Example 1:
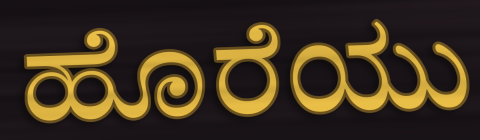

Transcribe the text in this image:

ಹೊರೆಯು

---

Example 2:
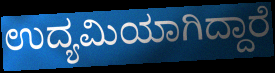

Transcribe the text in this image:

ಉದ್ಯಮಿಯಾಗಿದ್ದಾರೆ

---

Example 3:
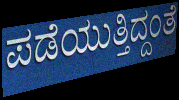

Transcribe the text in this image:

ಪಡೆಯುತ್ತಿದ್ದಂತೆ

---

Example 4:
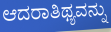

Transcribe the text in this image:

ಆದರಾತಿಥ್ಯವನ್ನು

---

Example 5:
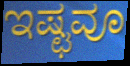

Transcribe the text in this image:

ಇಷ್ಟವೂ